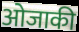
ओजाकी